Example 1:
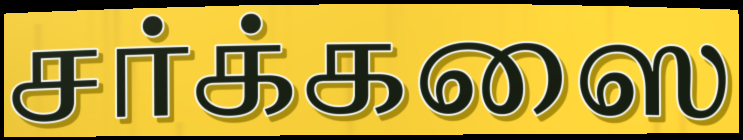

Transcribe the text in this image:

சர்க்கஸை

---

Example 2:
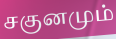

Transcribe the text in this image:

சகுனமும்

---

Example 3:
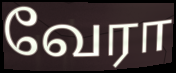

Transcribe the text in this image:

வேரா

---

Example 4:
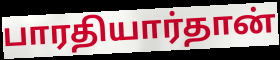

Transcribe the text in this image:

பாரதியார்தான்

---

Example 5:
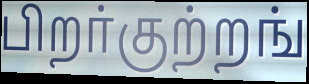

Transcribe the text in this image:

பிறர்குற்றங்